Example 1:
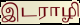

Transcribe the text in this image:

இடராழி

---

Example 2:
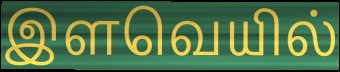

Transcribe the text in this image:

இளவெயில்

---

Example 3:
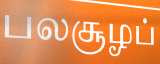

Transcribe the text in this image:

பலசூழப்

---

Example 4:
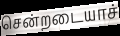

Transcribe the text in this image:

சென்றடையாச்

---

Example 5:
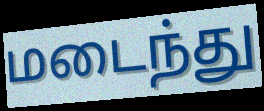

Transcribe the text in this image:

மடைந்து